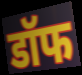
डॉफ